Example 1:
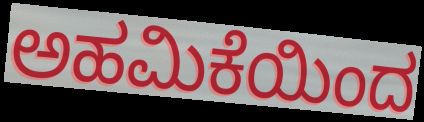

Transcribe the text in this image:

ಅಹಮಿಕೆಯಿಂದ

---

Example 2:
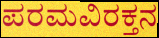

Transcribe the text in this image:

ಪರಮವಿರಕ್ತನ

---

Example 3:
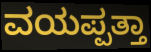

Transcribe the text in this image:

ವಯಪ್ಪತ್ತಾ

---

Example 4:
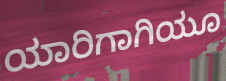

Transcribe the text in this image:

ಯಾರಿಗಾಗಿಯೂ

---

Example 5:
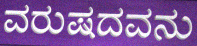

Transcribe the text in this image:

ವರುಷದವನು